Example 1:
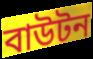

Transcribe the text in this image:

বাউটন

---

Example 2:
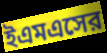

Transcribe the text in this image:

ইএমএসের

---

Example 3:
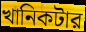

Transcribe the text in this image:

খানিকটার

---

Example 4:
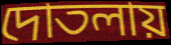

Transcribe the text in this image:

দোতলায়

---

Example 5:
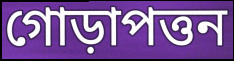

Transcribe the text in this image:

গোড়াপত্তন